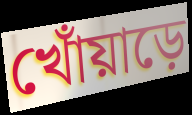
খোঁয়াড়ে